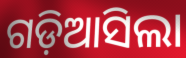
ଗଡ଼ିଆସିଲା